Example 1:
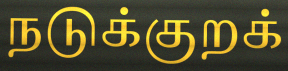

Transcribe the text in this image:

நடுக்குறக்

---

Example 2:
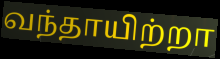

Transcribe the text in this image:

வந்தாயிற்றா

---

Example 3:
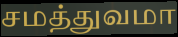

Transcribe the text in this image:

சமத்துவமா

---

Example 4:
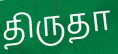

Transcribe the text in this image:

திருதா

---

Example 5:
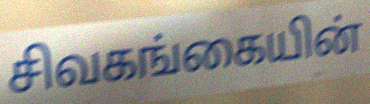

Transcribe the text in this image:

சிவகங்கையின்